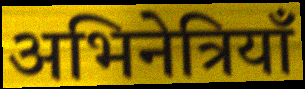
अभिनेत्रियाँ